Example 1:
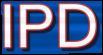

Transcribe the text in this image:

IPD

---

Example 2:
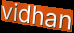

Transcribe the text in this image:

vidhan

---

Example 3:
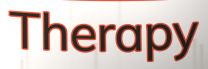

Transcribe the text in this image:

Therapy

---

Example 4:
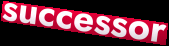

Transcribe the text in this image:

successor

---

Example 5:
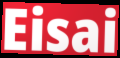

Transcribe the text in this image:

Eisai